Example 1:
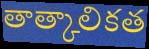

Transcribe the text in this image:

తాత్కాలికత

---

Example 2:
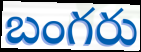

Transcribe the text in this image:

బంగరు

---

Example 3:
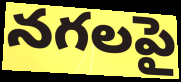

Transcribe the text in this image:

నగలపై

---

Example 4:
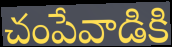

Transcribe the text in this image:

చంపేవాడికి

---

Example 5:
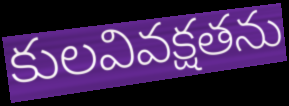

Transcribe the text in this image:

కులవివక్షతను